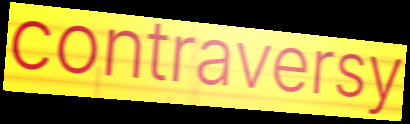
contraversy